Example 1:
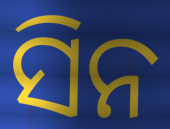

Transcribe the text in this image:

ସିନ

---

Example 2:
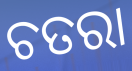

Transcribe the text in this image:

ଚତରା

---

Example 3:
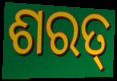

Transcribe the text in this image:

ଶରତ୍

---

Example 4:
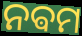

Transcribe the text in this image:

ନଵମ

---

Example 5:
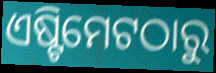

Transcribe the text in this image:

ଏଷ୍ଟିମେଟଠାରୁ